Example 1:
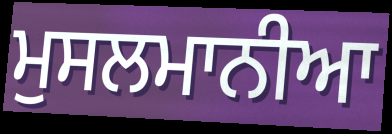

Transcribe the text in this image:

ਮੁਸਲਮਾਨੀਆ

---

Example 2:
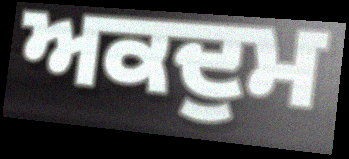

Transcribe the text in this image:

ਅਕਦੁਮ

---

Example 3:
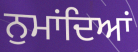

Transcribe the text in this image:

ਨੁਮਾਂਦਿਆਂ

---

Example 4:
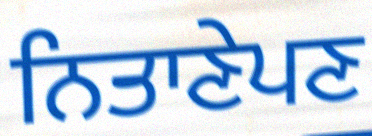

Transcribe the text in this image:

ਨਿਤਾਣੇਪਣ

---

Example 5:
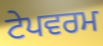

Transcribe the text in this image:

ਟੇਪਵਰਮ